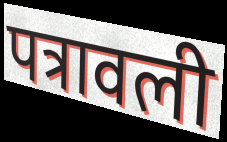
पत्रावली